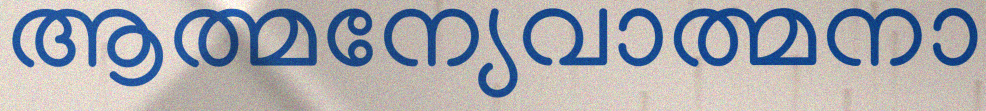
ആത്മന്യേവാത്മനാ